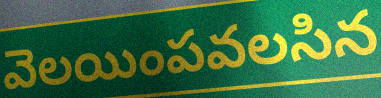
వెలయింపవలసిన